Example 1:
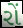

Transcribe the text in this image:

રોં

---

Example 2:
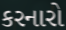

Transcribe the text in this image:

કરનારો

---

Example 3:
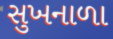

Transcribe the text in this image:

સુખનાળા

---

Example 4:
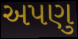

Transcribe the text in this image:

અપણુ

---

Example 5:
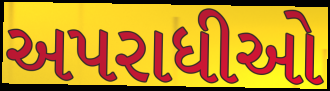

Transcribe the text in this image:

અપરાધીઓ